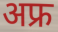
अफ्र